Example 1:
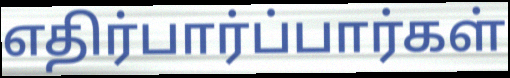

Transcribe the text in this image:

எதிர்பார்ப்பார்கள்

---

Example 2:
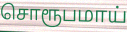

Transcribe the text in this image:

சொரூபமாய்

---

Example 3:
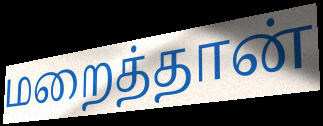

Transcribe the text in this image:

மறைத்தான்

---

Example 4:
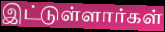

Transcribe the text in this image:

இட்டுள்ளார்கள்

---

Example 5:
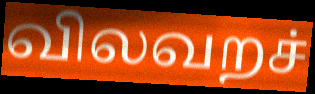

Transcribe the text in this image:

விலவறச்